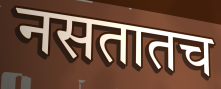
नसतातच